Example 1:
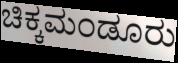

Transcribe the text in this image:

ಚಿಕ್ಕಮಂಡೂರು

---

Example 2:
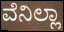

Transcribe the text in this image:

ವೆನಿಲ್ಲಾ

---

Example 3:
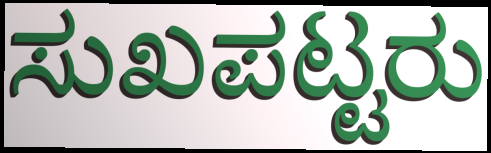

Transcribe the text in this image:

ಸುಖಪಟ್ಟರು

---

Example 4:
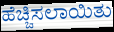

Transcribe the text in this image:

ಹೆಚ್ಚಿಸಲಾಯಿತು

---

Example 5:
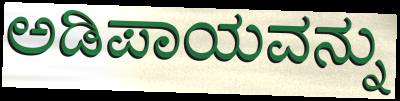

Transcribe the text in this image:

ಅಡಿಪಾಯವನ್ನು